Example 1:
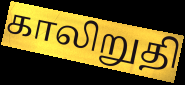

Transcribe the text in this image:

காலிறுதி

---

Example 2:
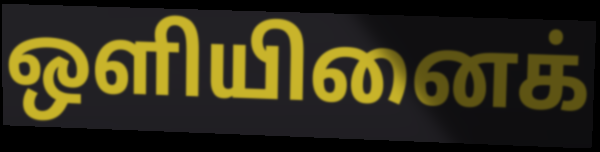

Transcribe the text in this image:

ஒளியினைக்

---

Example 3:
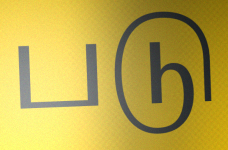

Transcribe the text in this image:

படு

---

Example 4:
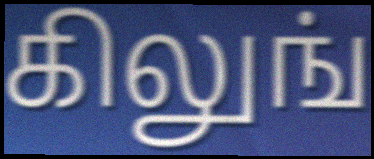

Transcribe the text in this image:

கிலுங்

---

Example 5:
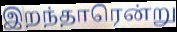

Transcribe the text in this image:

இறந்தாரென்று